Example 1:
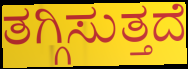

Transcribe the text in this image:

ತಗ್ಗಿಸುತ್ತದೆ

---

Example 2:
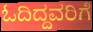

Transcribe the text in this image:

ಓದಿದ್ದವರಿಗೆ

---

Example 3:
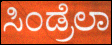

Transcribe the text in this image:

ಸಿಂಡ್ರೆಲಾ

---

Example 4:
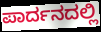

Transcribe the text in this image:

ಪಾರ್ದನದಲ್ಲಿ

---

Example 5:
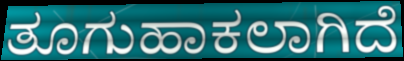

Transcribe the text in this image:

ತೂಗುಹಾಕಲಾಗಿದೆ